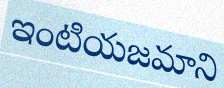
ఇంటియజమాని